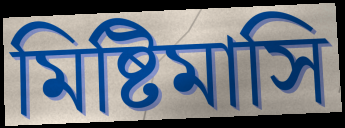
মিষ্টিমাসি